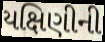
યક્ષિણીની